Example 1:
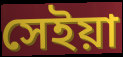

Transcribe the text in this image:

সেইয়া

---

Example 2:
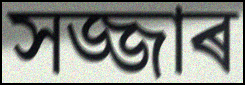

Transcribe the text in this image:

সজ্জাৰ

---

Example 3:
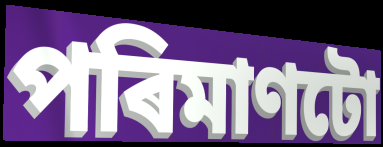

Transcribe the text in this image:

পৰিমাণটো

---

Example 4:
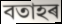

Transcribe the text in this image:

বতাহৰ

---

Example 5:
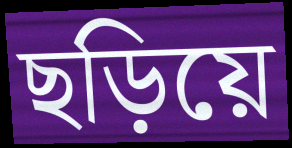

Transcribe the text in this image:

ছড়িয়ে